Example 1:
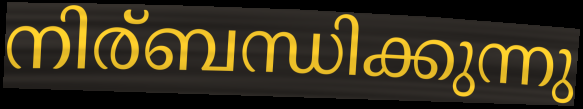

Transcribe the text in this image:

നിര്ബന്ധിക്കുന്നു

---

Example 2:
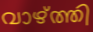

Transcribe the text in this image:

വാഴ്ത്തി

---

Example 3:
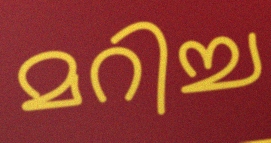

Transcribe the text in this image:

മറിച്ച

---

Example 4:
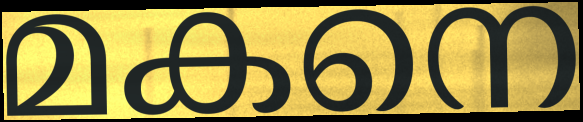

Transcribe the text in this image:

മകനെ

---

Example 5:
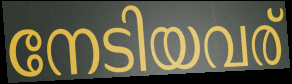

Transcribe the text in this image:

നേടിയവര്